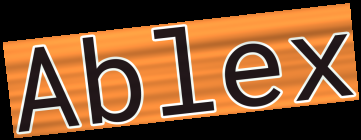
Ablex